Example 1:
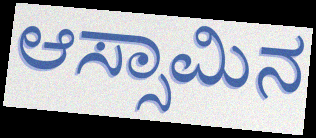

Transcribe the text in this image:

ಆಸ್ಸಾಮಿನ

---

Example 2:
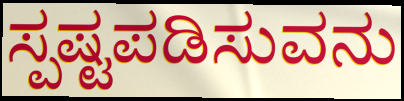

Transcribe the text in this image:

ಸ್ಪಷ್ಟಪಡಿಸುವನು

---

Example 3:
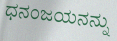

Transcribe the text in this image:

ಧನಂಜಯನನ್ನು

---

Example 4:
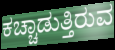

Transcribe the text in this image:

ಕಚ್ಚಾಡುತ್ತಿರುವ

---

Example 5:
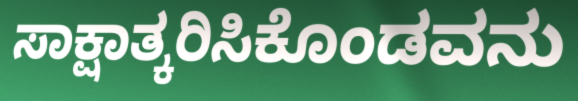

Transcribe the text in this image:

ಸಾಕ್ಷಾತ್ಕರಿಸಿಕೊಂಡವನು